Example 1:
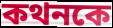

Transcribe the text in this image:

কথনকে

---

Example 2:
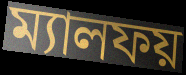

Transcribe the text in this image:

ম্যালফয়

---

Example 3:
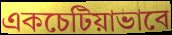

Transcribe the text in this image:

একচেটিয়াভাবে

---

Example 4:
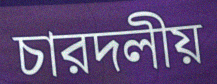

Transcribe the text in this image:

চারদলীয়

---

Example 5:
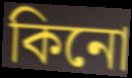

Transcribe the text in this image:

কিনো